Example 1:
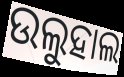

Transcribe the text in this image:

ଉଲୁହାଲ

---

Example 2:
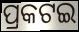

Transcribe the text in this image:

ପ୍ରକଟଇ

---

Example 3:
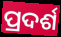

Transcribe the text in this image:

ପ୍ରଦର୍ଶ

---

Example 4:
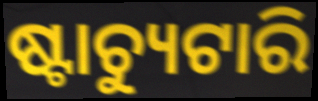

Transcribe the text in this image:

ଷ୍ଟାଚ୍ୟୁଟାରି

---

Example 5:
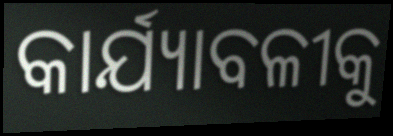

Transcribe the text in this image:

କାର୍ଯ୍ୟାବଳୀକୁ